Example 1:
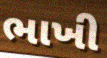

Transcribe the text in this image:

ભાખી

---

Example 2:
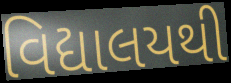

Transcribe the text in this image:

વિદ્યાલયથી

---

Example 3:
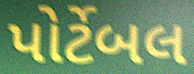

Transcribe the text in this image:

પોર્ટેબલ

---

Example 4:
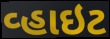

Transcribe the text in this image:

વ્હાઇટ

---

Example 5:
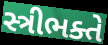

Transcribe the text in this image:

સ્ત્રીભક્તે